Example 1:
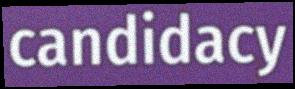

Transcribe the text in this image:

candidacy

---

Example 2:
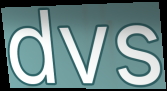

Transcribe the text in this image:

dvs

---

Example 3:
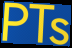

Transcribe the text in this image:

PTs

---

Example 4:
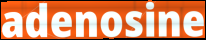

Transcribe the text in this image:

adenosine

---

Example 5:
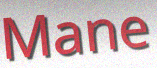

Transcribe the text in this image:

Mane